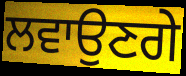
ਲਵਾਉਣਗੇ